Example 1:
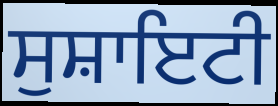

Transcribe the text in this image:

ਸੁਸ਼ਾਇਟੀ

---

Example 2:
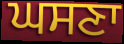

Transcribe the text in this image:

ਘਸਣਾ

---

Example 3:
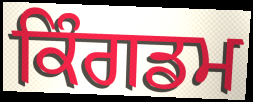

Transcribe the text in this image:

ਕਿੰਗਡਮ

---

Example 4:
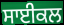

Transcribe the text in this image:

ਸਾਈਕਲ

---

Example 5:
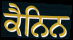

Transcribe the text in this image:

ਕੈਨਿਨ